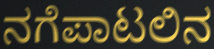
ನಗೆಪಾಟಲಿನ